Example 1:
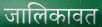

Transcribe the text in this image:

जालिकावत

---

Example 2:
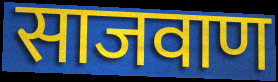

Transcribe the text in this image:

साजवाण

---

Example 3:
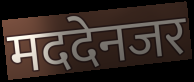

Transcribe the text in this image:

मददेनजर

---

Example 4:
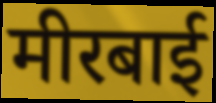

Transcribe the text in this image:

मीरबाई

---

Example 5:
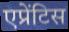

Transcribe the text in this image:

एप्रेंटिस